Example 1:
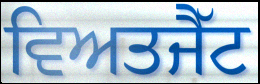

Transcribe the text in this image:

ਵਿਅਤਜੈੱਟ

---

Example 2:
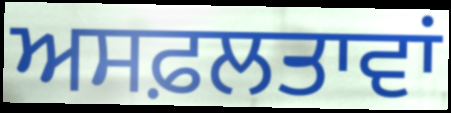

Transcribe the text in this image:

ਅਸਫ਼ਲਤਾਵਾਂ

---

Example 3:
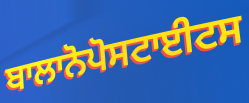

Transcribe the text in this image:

ਬਾਲਾਨੋਪੋਸਟਾਈਟਸ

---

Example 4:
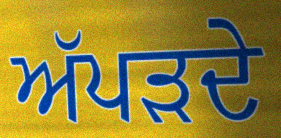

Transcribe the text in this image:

ਅੱਪੜਦੇ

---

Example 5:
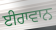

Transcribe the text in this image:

ਈਰਾਵਾਨ